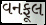
વનફૂલ